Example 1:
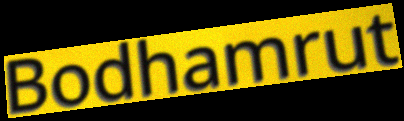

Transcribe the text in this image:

Bodhamrut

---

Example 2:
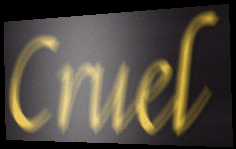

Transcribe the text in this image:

Cruel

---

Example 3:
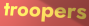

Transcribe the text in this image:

troopers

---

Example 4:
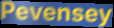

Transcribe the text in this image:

Pevensey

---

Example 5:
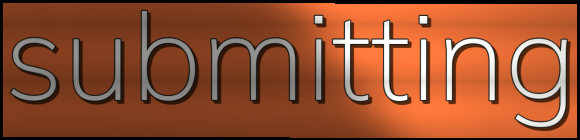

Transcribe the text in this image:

submitting